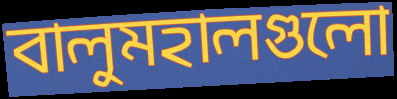
বালুমহালগুলো